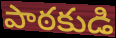
పాఠకుడి